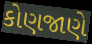
કોણજાણે